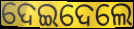
ଦେଇଦେଲେ